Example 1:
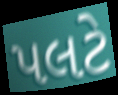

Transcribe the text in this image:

પલટે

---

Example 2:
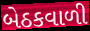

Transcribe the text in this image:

બેઠકવાળી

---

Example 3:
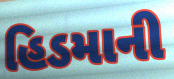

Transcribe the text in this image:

હિડમાની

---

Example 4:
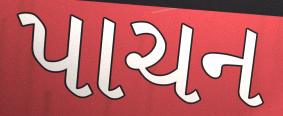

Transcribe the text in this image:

પાચન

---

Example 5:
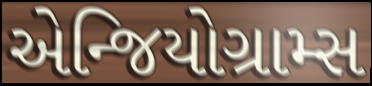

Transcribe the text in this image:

એન્જિયોગ્રામ્સ